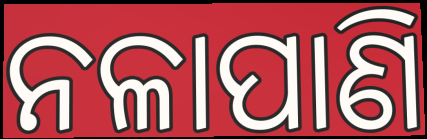
ନଳାପାଣି